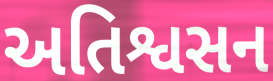
અતિશ્વસન